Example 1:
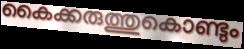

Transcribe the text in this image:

കൈക്കരുത്തുകൊണ്ടും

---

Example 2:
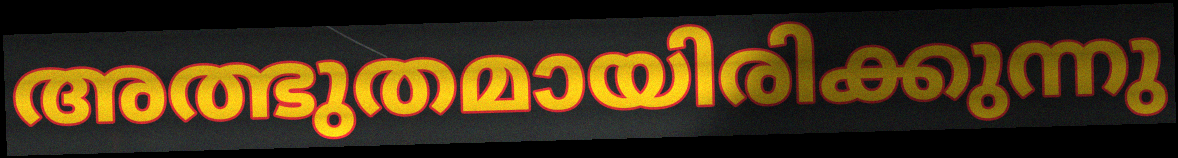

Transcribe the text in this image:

അത്ഭുതമായിരിക്കുന്നു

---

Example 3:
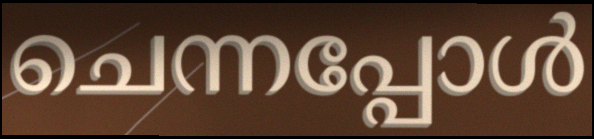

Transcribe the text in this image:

ചെന്നപ്പോൾ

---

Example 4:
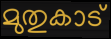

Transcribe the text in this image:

മുതുകാട്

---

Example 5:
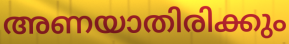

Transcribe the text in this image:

അണയാതിരിക്കും